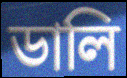
ডালি